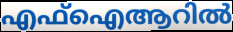
എഫ്ഐആറിൽ